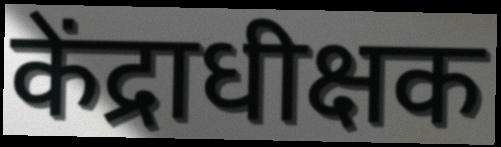
केंद्राधीक्षक